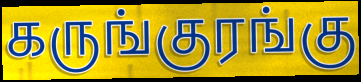
கருங்குரங்கு